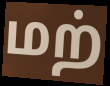
மற்